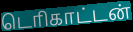
டெரிகாட்டன்